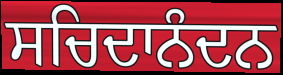
ਸਚਿਦਾਨੰਦਨ